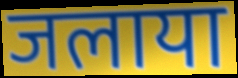
जलाया